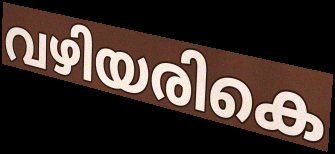
വഴിയരികെ